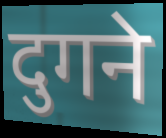
दुगने